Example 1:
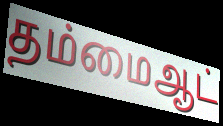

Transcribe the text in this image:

தம்மைஆட்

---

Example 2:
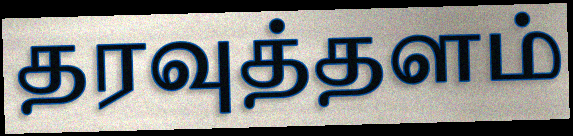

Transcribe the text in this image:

தரவுத்தளம்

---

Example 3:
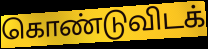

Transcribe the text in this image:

கொண்டுவிடக்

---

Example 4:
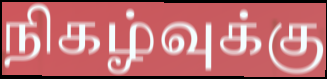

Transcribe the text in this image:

நிகழ்வுக்கு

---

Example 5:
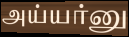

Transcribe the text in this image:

அய்யர்னு